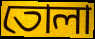
তোলা